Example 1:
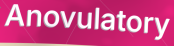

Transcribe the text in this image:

Anovulatory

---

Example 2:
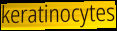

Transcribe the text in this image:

keratinocytes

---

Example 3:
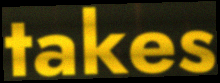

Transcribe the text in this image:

takes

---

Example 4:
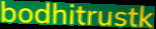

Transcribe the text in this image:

bodhitrustk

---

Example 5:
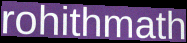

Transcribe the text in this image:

rohithmath